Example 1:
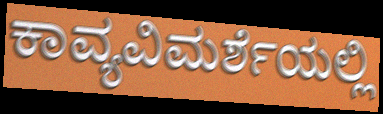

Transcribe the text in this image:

ಕಾವ್ಯವಿಮರ್ಶೆಯಲ್ಲಿ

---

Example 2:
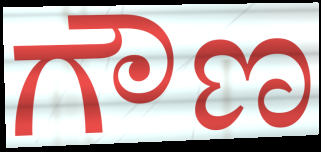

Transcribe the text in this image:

ಗೌಣ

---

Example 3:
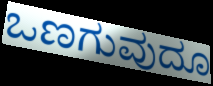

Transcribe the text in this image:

ಒಣಗುವುದೂ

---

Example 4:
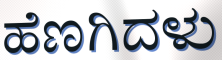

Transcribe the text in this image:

ಹೆಣಗಿದಳು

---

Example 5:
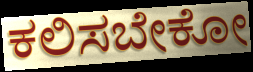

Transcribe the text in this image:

ಕಲಿಸಬೇಕೋ